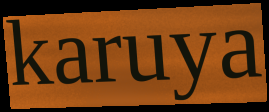
karuya